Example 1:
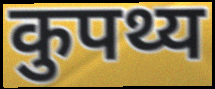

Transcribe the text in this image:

कुपथ्य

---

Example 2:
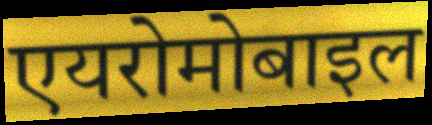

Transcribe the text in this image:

एयरोमोबाइल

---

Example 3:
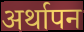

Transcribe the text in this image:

अर्थापन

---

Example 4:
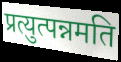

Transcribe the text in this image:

प्रत्युत्पन्नमति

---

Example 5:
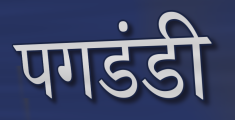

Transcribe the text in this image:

पगडंडी